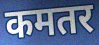
कमतर